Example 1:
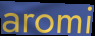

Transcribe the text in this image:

aromi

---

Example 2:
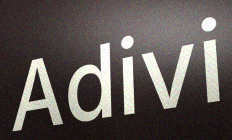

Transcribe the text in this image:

Adivi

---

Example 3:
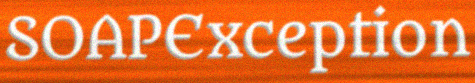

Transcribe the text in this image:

SOAPException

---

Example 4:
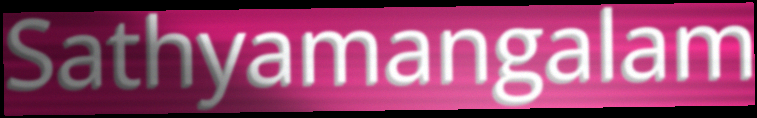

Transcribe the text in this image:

Sathyamangalam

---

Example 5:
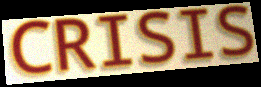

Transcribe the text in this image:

CRISIS